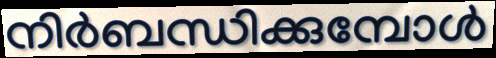
നിർബന്ധിക്കുമ്പോൾ